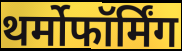
थर्मोफॉर्मिंग